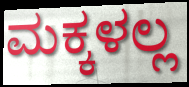
ಮಕ್ಕಳಲ್ಲ